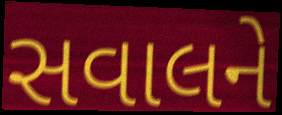
સવાલને